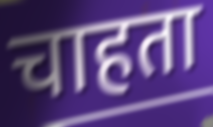
चाहता